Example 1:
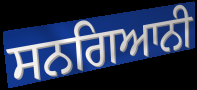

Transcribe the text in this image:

ਸਨਗਿਆਨੀ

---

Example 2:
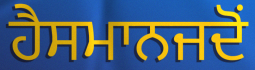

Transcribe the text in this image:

ਹੈਸਮਾਨਜਦੋਂ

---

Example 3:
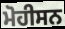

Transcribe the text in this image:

ਮੋਹੀਸਨ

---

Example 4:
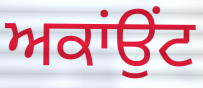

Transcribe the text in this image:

ਅਕਾਂਉਂਟ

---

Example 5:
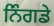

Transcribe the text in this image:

ਨਿੰਗਡੇ